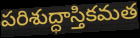
పరిశుద్ధాస్తికమత